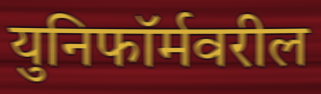
युनिफॉर्मवरील